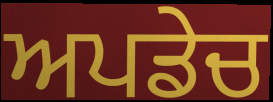
ਅਪਡੇਚ